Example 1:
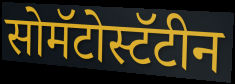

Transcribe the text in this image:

सोमॅटोस्टॅटीन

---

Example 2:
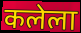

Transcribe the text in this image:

कलेला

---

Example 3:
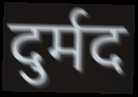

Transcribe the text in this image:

दुर्मद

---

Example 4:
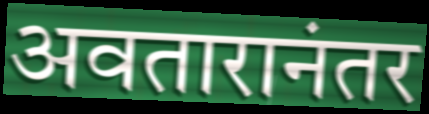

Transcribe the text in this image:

अवतारानंतर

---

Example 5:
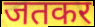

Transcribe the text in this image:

जतकर